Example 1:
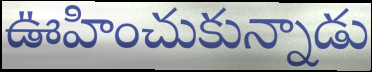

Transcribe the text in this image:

ఊహించుకున్నాడు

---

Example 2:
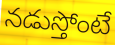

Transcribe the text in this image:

నడుస్తోంటే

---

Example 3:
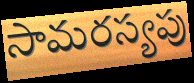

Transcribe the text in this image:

సామరస్యపు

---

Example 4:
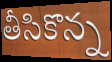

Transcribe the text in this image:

తీసికొన్న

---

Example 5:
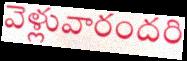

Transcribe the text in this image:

వెళ్లువారందరి